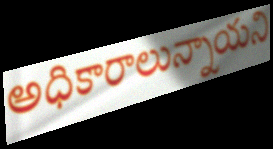
అధికారాలున్నాయని